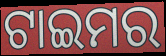
ଟାଇମର